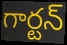
గార్టన్